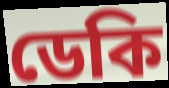
ডেকি